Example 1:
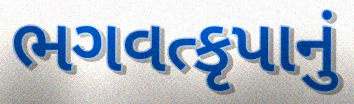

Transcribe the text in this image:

ભગવત્કૃપાનું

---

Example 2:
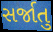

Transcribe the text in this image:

સર્જાતુ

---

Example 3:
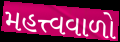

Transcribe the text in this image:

મહત્ત્વવાળો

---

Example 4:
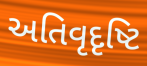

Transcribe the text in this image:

અતિવૃદૃષ્ટિ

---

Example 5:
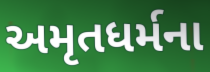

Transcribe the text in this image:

અમૃતધર્મના